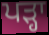
ਪੜ੍ਹਾ